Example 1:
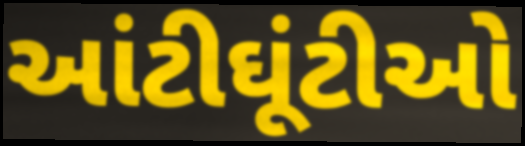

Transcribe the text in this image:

આંટીઘૂંટીઓ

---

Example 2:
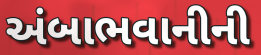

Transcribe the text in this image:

અંબાભવાનીની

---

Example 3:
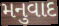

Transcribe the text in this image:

મનુવાદ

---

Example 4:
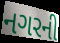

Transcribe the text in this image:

નગરની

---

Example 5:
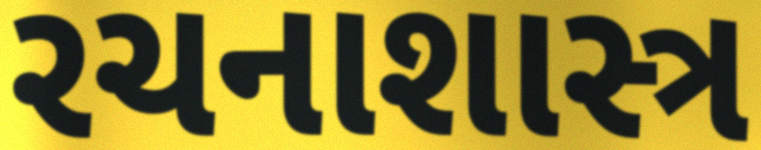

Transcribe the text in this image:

રચનાશાસ્ત્ર